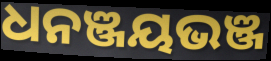
ଧନଞ୍ଜୟଭଞ୍ଜ